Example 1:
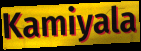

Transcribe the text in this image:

Kamiyala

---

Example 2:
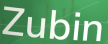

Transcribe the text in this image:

Zubin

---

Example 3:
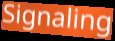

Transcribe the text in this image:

Signaling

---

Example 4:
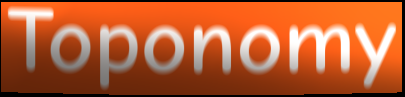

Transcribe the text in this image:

Toponomy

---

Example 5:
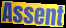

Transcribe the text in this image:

Assent